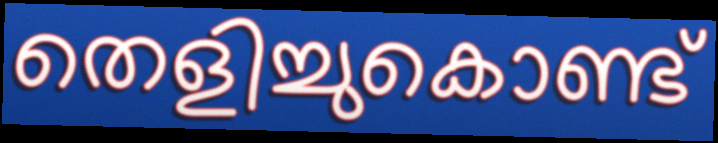
തെളിച്ചുകൊണ്ട്